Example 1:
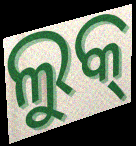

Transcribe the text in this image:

ଲୁକ୍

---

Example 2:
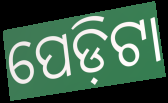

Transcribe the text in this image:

ପେଡ଼ିଟା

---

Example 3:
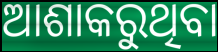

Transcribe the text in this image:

ଆଶାକରୁଥିବା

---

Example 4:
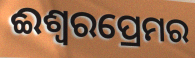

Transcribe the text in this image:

ଈଶ୍ୱରପ୍ରେମର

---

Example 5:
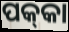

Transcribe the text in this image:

ପକ୍‍କା